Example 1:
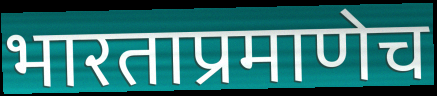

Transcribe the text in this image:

भारताप्रमाणेच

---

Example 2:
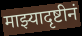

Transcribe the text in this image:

माझ्यादृष्टीनं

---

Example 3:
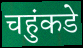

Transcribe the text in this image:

चहुंकडे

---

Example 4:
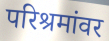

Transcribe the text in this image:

परिश्रमांवर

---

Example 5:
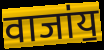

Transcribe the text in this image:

वाजा॑य॒